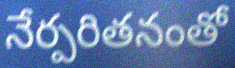
నేర్పరితనంతో